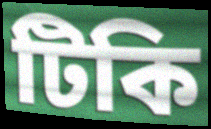
টিকি